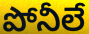
పోనీలే